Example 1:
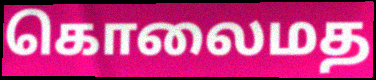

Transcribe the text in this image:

கொலைமத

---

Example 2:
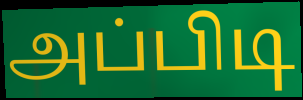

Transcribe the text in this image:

அப்பிடி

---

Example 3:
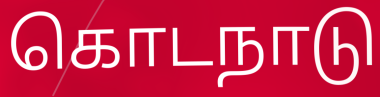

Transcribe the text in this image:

கொடநாடு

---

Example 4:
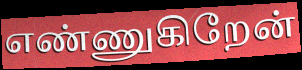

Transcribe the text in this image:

எண்ணுகிறேன்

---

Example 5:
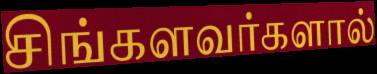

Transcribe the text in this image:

சிங்களவர்களால்